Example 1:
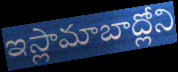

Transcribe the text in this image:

ఇస్లామాబాద్లోని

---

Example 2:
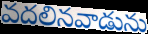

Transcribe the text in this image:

వదలినవాడును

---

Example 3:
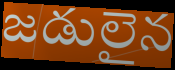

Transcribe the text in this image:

జడులైన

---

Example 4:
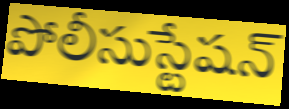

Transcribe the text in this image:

పోలీసుస్టేషన్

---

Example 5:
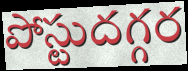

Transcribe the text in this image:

పోస్టుదగ్గర